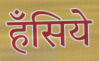
हँसिये